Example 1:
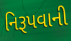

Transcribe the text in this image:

નિરૂપવાની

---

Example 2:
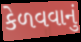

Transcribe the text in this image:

કેળવવાનું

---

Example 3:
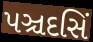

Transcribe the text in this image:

પઞ્ચદસિં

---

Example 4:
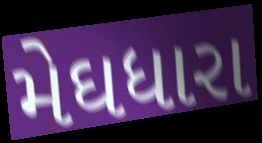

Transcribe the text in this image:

મેઘધારા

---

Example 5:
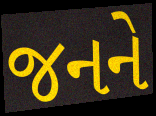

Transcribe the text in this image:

જનને